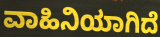
ವಾಹಿನಿಯಾಗಿದೆ